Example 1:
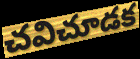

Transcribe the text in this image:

చవిచూడక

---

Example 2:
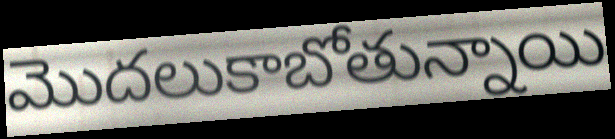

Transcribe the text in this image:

మొదలుకాబోతున్నాయి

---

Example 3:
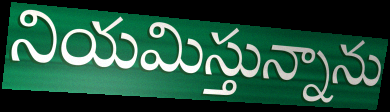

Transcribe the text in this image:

నియమిస్తున్నాను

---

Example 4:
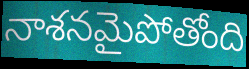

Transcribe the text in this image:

నాశనమైపోతోంది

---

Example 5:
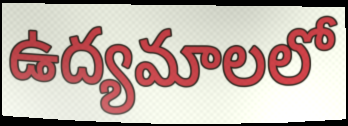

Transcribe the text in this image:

ఉద్యమాలలో